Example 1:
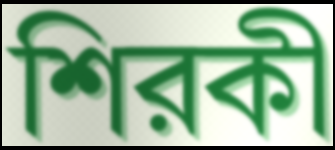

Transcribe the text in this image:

শিরকী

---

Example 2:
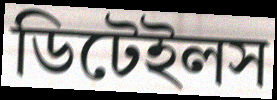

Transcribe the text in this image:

ডিটেইলস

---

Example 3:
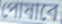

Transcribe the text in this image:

পোষাবে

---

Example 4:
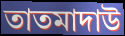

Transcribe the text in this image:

তাতমাদাউ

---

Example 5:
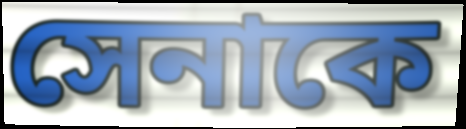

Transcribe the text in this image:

সেনাকে